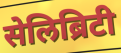
सेलिब्रिटी